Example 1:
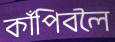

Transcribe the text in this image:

কাঁপিবলৈ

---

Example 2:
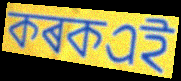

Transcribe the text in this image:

কৰকএই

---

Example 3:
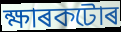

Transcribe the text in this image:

ক্ষাৰকটোৰ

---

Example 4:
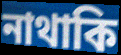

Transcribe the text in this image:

নাথাকি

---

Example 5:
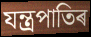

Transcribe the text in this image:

যন্ত্ৰপাতিৰ